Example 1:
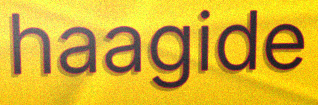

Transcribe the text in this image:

haagide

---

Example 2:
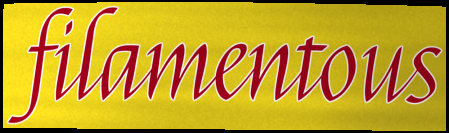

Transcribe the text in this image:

filamentous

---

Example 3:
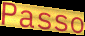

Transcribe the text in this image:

Passo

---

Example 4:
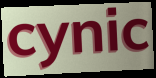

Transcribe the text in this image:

cynic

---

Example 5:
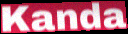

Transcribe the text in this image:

Kanda